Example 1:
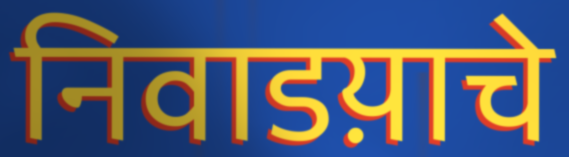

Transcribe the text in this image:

निवाडय़ाचे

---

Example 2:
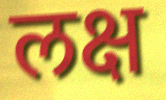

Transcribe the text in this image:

लक्ष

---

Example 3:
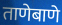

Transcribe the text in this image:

ताणेबाणे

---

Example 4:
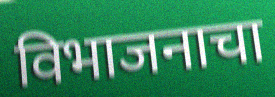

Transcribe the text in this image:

विभाजनाचा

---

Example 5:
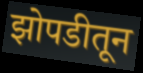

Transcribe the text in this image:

झोपडीतून